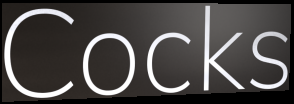
Cocks